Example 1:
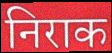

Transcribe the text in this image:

निराक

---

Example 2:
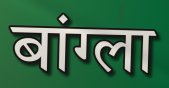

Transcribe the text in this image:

बांग्‍ला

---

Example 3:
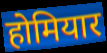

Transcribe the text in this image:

होमियार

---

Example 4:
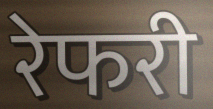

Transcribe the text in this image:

रेफरी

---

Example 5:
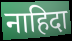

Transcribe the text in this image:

नाहिदा